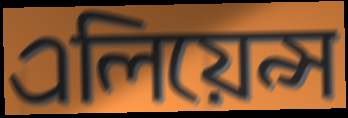
এলিয়েন্স